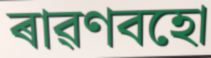
ৰাৱণবহো